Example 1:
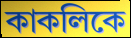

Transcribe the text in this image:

কাকলিকে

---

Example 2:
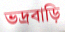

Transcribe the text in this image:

ভদ্রবাড়ি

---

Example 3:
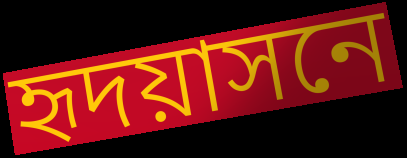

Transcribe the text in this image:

হৃদয়াসনে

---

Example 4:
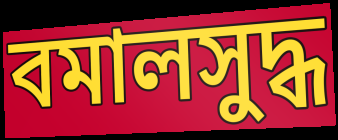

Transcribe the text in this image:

বমালসুদ্ধ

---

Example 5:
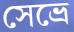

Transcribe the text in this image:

সেভ্রে